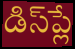
డిస్‌ప్లే